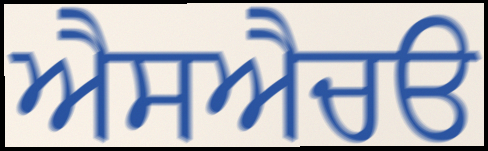
ਐਸਐਚੳ